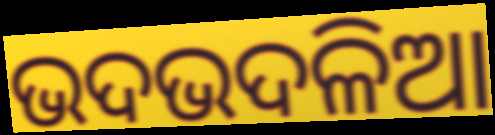
ଭଦଭଦଳିଆ